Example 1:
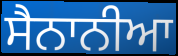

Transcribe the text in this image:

ਸੈਨਾਨੀਆ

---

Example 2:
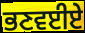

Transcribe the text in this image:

ਭਣਵਈਏ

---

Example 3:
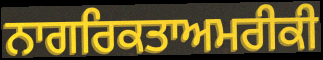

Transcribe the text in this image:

ਨਾਗਰਿਕਤਾਅਮਰੀਕੀ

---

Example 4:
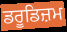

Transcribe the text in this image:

ਡਰੂਡਿਜ਼ਮ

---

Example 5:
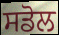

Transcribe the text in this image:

ਸਡੋਲ